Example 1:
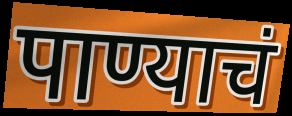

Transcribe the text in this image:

पाण्याचं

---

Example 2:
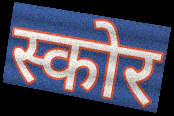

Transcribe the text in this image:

स्कोर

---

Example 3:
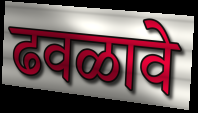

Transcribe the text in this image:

ढवळावे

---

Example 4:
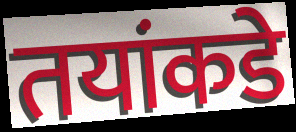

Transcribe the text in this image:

तयांकडे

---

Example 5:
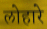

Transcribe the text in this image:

लोहारे